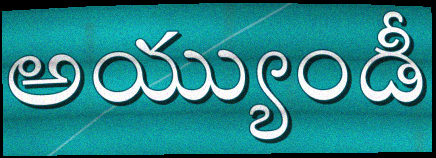
అయ్యుండీ